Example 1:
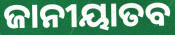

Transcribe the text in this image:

ଜାନୀୟାତବ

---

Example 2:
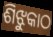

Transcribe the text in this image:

ଶିଝୁକାଠ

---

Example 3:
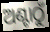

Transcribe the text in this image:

ଅଣ୍ଟାଠୁଁ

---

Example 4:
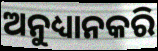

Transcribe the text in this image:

ଅନୁଧ୍ୟାନକରି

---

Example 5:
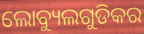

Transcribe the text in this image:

ଲୋବ୍ୟୁଲଗୁଡିକର